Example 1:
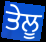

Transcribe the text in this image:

ਤੇਲੂ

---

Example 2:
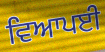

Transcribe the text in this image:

ਵਿਆਪਈ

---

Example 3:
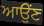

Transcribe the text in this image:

ਆਉਂਣ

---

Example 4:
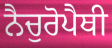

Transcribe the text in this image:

ਨੈਚੁਰੋਪੈਥੀ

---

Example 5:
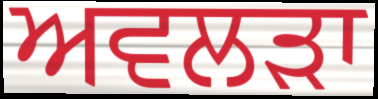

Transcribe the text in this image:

ਅਵਲੜਾ